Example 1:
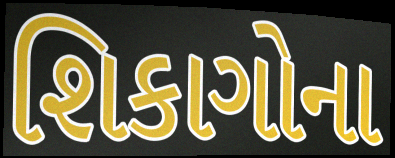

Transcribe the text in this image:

શિકાગોના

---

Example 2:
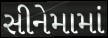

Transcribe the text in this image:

સીનેમામાં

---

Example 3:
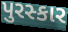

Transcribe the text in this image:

પુરસ્કાર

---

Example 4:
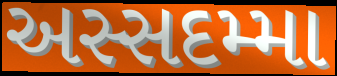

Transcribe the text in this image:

અસ્સદમ્મા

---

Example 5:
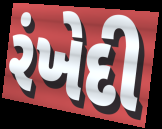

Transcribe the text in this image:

રંખેદી